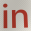
in